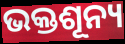
ଭକ୍ତଶୂନ୍ୟ